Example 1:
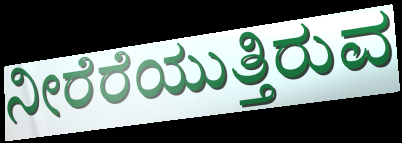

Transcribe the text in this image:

ನೀರೆರೆಯುತ್ತಿರುವ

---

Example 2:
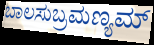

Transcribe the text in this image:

ಬಾಲಸುಬ್ರಮಣ್ಯಮ್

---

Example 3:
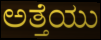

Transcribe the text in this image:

ಅತ್ತೆಯು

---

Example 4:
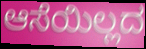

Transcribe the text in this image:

ಆಸೆಯಿಲ್ಲದ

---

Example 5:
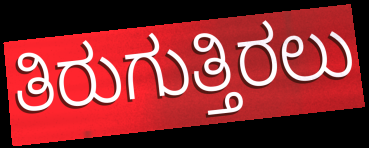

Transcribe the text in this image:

ತಿರುಗುತ್ತಿರಲು